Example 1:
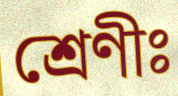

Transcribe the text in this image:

শ্ৰেণীঃ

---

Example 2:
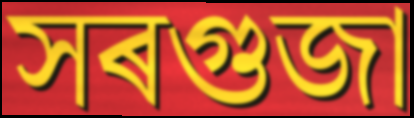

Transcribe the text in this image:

সৰগুজা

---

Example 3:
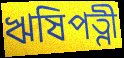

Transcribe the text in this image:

ঋষিপত্নী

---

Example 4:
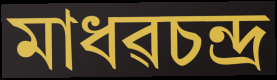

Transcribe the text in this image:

মাধৱচন্দ্ৰ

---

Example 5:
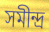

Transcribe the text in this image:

সমীন্দ্ৰ